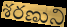
శరణుని